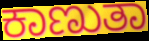
ಕಾಣುತಾ